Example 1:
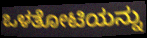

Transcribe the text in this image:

ಒಳತೋಟಿಯನ್ನು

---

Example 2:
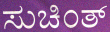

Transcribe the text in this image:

ಸುಚಿಂತ್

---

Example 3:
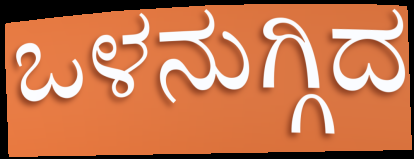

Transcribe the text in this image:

ಒಳನುಗ್ಗಿದ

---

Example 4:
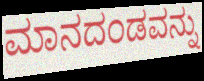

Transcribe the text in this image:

ಮಾನದಂಡವನ್ನು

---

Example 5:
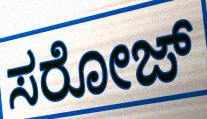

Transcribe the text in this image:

ಸರೋಜ್